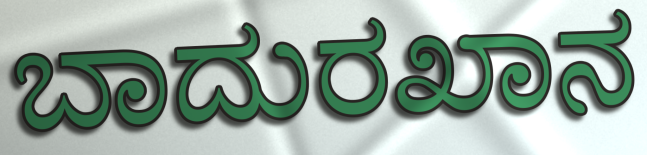
ಬಾದುರಖಾನ